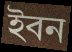
ইবন